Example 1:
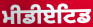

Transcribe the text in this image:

ਮੀਡੀਏਟਿਡ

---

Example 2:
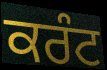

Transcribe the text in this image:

ਕਰੰਟ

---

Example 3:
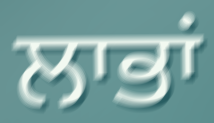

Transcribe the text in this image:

ਲਾਭਾਂ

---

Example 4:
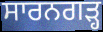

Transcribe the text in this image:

ਸਾਰਨਗੜ੍ਹ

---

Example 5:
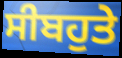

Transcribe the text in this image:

ਸੀਬਹੁਤੇ